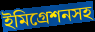
ইমিগ্রেশনসহ